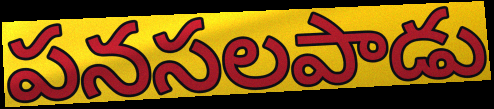
పనసలపాడు